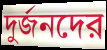
দুর্জনদের